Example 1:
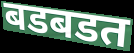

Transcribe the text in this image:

बडबडत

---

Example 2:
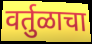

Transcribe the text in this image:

वर्तुळाचा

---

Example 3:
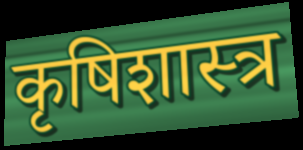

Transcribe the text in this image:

कृषिशास्त्र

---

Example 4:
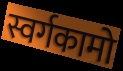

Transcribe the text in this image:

स्वर्गकामो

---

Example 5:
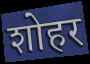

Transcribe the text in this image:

शोहर